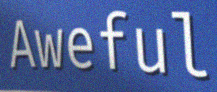
Aweful